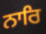
ਨਾਰਿ